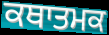
ਕਥਾਤਮਕ